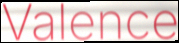
Valence